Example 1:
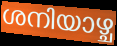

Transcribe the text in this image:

ശനിയാഴ്ച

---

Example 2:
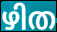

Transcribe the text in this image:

ഴിത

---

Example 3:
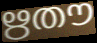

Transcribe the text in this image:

ഋതൗ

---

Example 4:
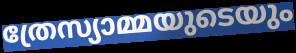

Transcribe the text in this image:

ത്രേസ്യാമ്മയുടെയും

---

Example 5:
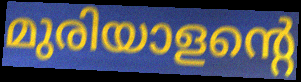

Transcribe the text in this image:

മുരിയാളന്റെ